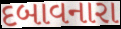
દબાવનારા